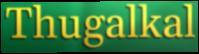
Thugalkal